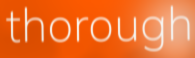
thorough